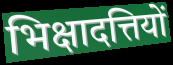
भिक्षादत्तियों